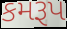
કમરૂપ